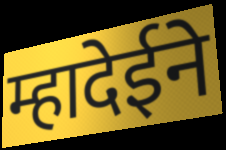
म्हादेईने